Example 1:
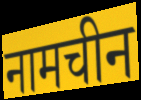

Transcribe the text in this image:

नामचीन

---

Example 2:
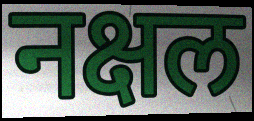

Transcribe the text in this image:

नक्षल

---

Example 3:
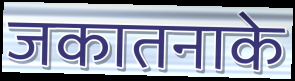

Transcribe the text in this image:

जकातनाके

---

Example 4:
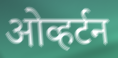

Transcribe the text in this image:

ओव्हर्टन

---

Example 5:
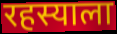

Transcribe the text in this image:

रहस्याला